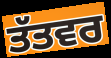
ਤੱਤਵਰ